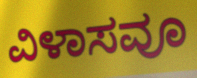
ವಿಳಾಸವೂ